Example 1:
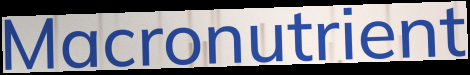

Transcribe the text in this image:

Macronutrient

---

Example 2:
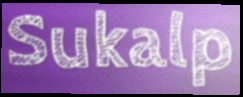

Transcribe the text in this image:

Sukalp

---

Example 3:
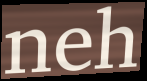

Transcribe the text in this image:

neh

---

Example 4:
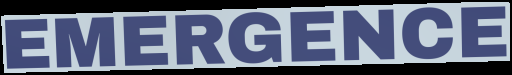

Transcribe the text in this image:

EMERGENCE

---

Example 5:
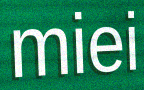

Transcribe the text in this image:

miei